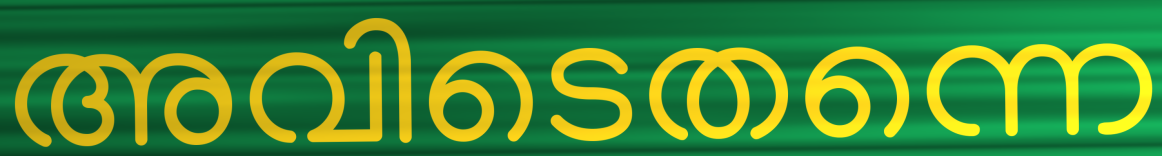
അവിടെതന്നെ